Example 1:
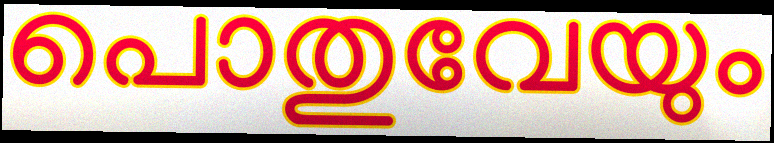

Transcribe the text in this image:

പൊതുവേയും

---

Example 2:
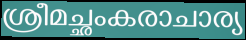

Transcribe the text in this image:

ശ്രീമച്ഛംകരാചാര്യ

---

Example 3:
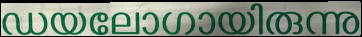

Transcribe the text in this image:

ഡയലോഗായിരുന്നു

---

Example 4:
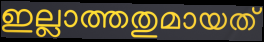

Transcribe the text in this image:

ഇല്ലാത്തതുമായത്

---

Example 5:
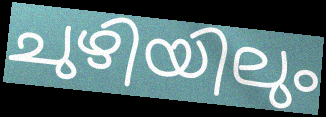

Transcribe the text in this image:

ചുഴിയിലും